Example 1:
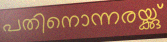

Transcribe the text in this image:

പതിനൊന്നരയ്ക്കു്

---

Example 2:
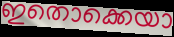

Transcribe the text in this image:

ഇതൊക്കെയാ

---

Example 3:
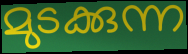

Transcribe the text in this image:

മുടക്കുന്ന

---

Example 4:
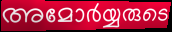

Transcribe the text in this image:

അമോർയ്യരുടെ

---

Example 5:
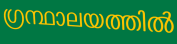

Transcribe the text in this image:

ഗ്രന്ഥാലയത്തിൽ